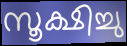
സൂക്ഷിച്ചു